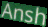
Ansh